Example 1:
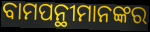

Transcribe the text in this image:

ବାମପନ୍ଥୀମାନଙ୍କର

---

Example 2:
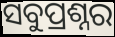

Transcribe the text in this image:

ସବୁପ୍ରଶ୍ନର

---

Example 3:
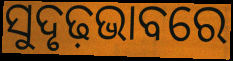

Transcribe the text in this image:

ସୁଦୃଢ଼ଭାବରେ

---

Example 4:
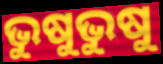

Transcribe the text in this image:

ଭୁଷୁଭୁଷୁ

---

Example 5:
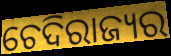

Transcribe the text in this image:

ଚେଦିରାଜ୍ୟର